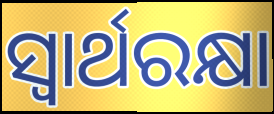
ସ୍ଵାର୍ଥରକ୍ଷା